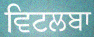
ਵਿਟਲਬਾ